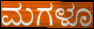
ಮಗಳೂ